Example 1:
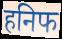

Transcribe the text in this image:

हनिफ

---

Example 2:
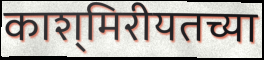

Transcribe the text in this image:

काश्मिरीयतच्या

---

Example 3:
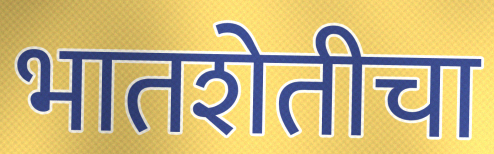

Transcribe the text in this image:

भातशेतीचा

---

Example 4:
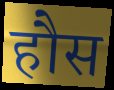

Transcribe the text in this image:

हौस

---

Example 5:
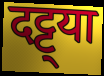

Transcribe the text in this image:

दट्ट्या